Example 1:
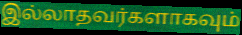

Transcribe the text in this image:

இல்லாதவர்களாகவும்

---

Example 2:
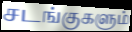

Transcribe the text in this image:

சடங்குகளும்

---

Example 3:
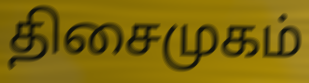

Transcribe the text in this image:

திசைமுகம்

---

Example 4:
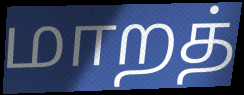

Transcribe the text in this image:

மாறத்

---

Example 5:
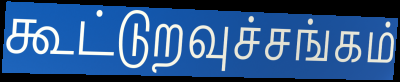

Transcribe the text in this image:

கூட்டுறவுச்சங்கம்